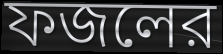
ফজলের